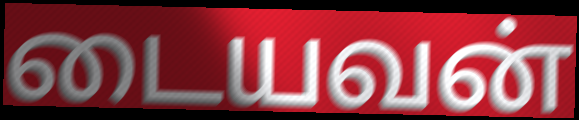
டையவன்